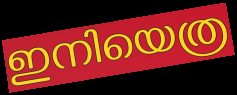
ഇനിയെത്ര